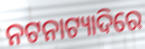
ନଟନାଟ୍ୟାଦିରେ